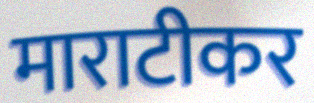
माराटीकर